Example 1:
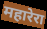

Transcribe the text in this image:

महारेरा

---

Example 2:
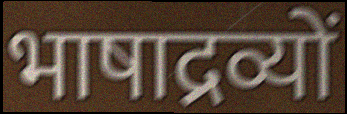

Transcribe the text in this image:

भाषाद्रव्यों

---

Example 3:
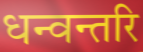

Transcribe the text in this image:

धन्वन्तरि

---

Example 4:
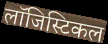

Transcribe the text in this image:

लॉजिस्टिकल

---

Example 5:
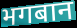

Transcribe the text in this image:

भगबान